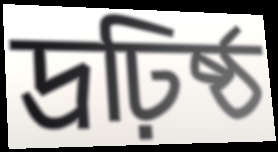
দ্রঢ়িষ্ঠ